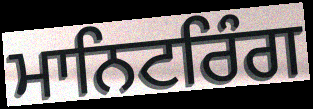
ਮਾਨਿਟਰਿੰਗ